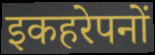
इकहरेपनों